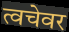
त्वचेवर